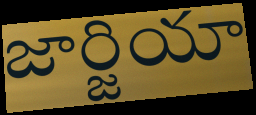
జార్జియా